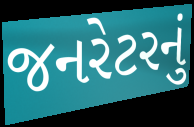
જનરેટરનું